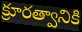
క్రూరత్వానికి